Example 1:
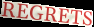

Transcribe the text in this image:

REGRETS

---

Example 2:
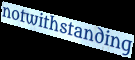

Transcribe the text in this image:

notwithstanding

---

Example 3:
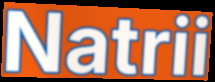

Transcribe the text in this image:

Natrii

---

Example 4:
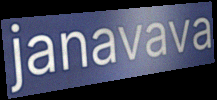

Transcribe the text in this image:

janavava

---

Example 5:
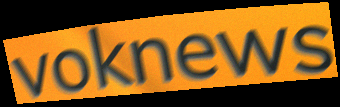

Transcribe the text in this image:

voknews